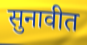
सुनावीत